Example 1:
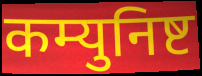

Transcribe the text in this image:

कम्युनिष्ट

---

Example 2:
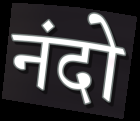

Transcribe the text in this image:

नंदो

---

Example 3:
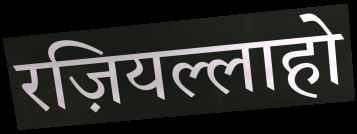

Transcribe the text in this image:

रज़ियल्लाहो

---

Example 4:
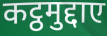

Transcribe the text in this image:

कट्ठमुद्दाए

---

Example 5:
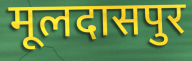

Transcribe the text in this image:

मूलदासपुर